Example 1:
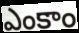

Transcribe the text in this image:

ఎంకాం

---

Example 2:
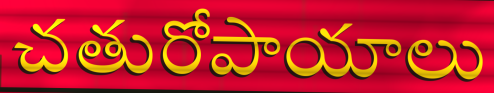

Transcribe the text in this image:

చతురోపాయాలు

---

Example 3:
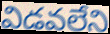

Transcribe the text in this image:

విడవలేని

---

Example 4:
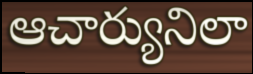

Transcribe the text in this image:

ఆచార్యునిలా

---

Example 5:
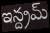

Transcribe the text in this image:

ఇన్ద్రమ్